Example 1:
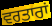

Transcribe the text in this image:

ਵਰਤਾਰਾਂ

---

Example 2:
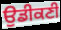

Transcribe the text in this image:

ਉਡੀਕਣੀ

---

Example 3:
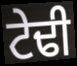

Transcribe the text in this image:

ਟੇਢੀ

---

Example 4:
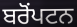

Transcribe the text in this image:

ਬਰੋਂਪਟਨ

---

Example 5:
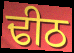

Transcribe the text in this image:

ਢੀਠ